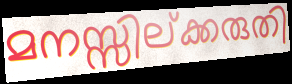
മനസ്സില്ക്കരുതി